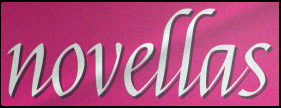
novellas